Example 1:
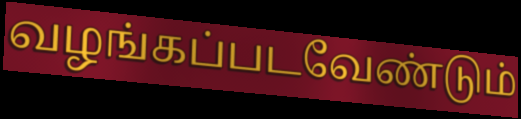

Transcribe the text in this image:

வழங்கப்படவேண்டும்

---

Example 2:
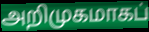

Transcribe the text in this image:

அறிமுகமாகப்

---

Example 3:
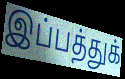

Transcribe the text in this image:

இப்பத்துக்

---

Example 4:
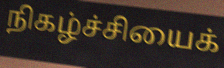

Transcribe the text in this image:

நிகழ்ச்சியைக்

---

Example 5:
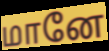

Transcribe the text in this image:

மானே